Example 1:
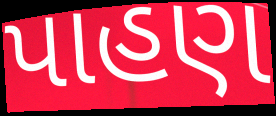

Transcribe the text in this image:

પાહણ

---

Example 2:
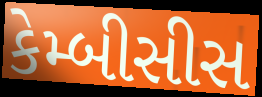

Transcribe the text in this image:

કેમ્બીસીસ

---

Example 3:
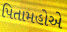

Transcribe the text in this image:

પિતામહોએ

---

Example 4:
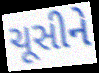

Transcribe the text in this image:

ચૂસીને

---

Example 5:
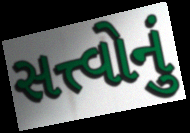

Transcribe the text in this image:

સત્ત્વોનું